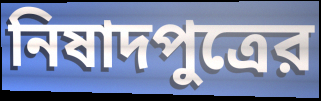
নিষাদপুত্রের